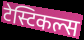
टेस्टिकल्स